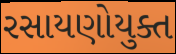
રસાયણોયુક્ત